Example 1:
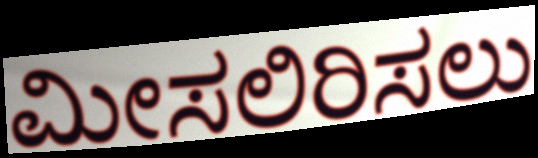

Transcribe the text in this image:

ಮೀಸಲಿರಿಸಲು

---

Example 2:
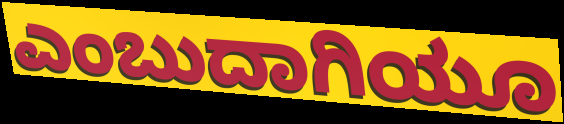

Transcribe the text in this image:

ಎಂಬುದಾಗಿಯೂ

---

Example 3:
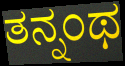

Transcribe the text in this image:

ತನ್ನಂಥ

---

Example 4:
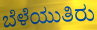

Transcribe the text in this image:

ಬೆಳೆಯುತಿರು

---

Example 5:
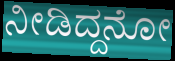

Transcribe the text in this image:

ನೀಡಿದ್ದನೋ